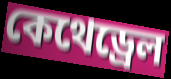
কেথেড্ৰেল